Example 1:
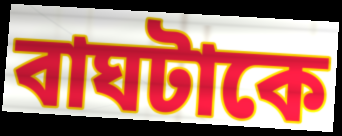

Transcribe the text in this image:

বাঘটাকে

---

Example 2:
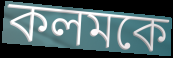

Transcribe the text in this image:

কলমকে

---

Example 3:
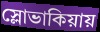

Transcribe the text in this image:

স্লোভাকিয়ায়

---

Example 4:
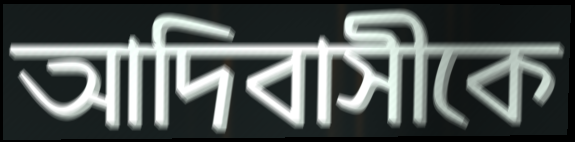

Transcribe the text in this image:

আদিবাসীকে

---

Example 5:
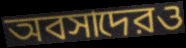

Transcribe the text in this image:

অবসাদেরও